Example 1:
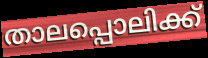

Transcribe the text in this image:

താലപ്പൊലിക്ക്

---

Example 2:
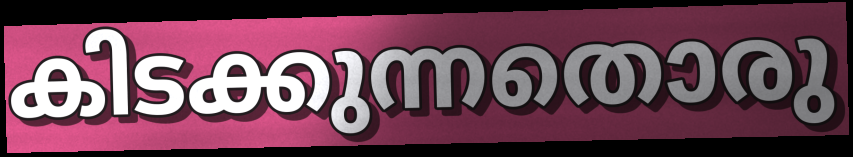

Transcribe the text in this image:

കിടക്കുന്നതൊരു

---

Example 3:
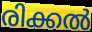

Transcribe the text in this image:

രിക്കൽ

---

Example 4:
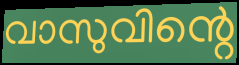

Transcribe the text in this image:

വാസുവിന്റെ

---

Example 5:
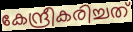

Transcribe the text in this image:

കേന്ദ്രീകരിച്ചത്